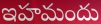
ఇహమందు